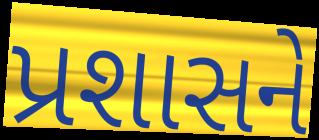
પ્રશાસને